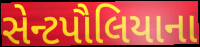
સેન્ટપૌલિયાના